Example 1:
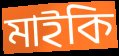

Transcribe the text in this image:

মাইকি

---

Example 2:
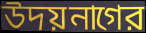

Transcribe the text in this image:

উদয়নাগের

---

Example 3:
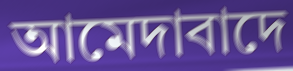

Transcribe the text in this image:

আমেদাবাদে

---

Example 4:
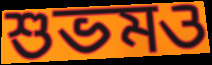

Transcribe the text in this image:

শুভমও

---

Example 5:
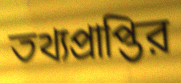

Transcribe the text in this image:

তথ্যপ্রাপ্তির